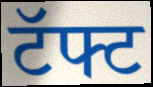
टॅफ्ट